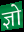
ज्ञो